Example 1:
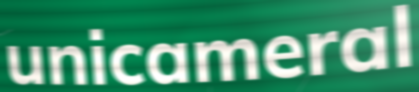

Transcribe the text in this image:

unicameral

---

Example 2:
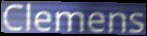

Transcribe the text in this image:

Clemens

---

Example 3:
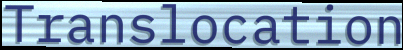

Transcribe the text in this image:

Translocation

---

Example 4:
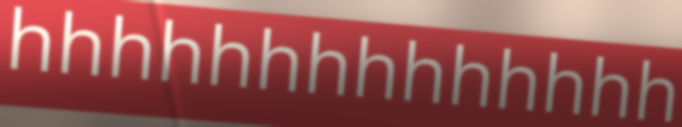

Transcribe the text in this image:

hhhhhhhhhhhhhh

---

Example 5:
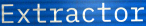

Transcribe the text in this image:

Extractor